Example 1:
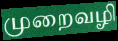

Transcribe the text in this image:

முறைவழி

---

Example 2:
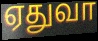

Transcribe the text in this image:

ஏதுவா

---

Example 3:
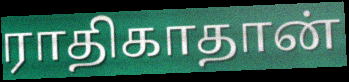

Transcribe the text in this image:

ராதிகாதான்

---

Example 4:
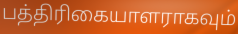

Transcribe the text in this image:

பத்திரிகையாளராகவும்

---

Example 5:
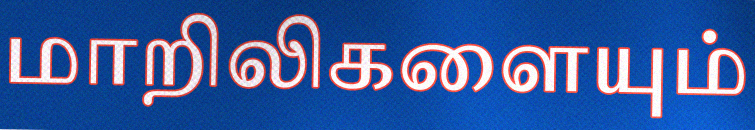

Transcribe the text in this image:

மாறிலிகளையும்